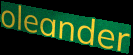
oleander